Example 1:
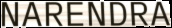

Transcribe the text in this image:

NARENDRA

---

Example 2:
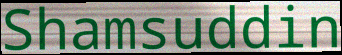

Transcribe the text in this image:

Shamsuddin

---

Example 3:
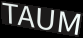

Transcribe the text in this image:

TAUM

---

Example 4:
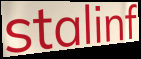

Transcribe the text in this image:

stalinf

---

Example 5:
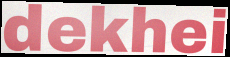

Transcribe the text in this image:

dekhei